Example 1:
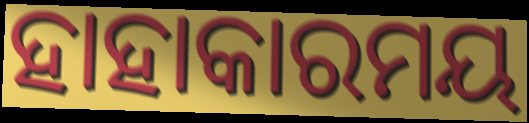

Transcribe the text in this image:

ହାହାକାରମୟ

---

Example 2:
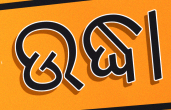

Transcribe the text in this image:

ଉଦ୍ଧା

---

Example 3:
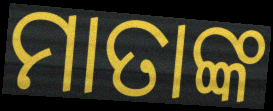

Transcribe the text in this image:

ମାତାଙ୍କ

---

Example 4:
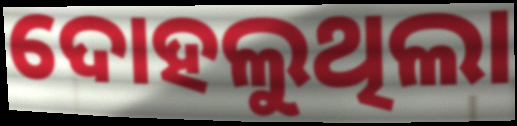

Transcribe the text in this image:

ଦୋହଲୁଥିଲା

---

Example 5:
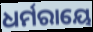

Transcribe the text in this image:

ଧର୍ମରାୟେ